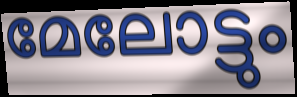
മേലോട്ടും